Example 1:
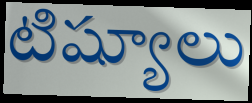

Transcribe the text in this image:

టిష్యూలు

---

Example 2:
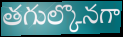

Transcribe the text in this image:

తగుల్కొనగా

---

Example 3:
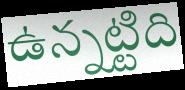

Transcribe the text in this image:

ఉన్నట్టిది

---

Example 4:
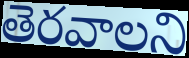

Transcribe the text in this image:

తెరవాలని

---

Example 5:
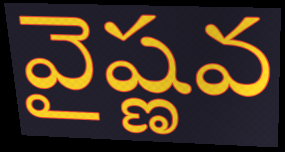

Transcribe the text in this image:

వైష్ణవ